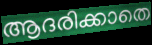
ആദരിക്കാതെ